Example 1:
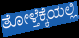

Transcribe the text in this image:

ತೋಳ್ತೆಕ್ಕೆಯಲ್ಲಿ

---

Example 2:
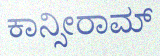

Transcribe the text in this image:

ಕಾನ್ಸೀರಾಮ್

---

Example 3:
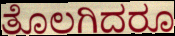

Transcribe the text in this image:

ತೊಲಗಿದರೂ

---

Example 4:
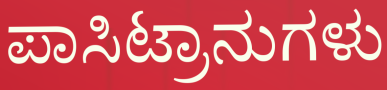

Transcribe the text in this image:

ಪಾಸಿಟ್ರಾನುಗಳು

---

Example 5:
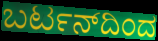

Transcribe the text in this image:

ಬರ್ಟನ್‌ದಿಂದ